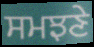
ਸਮਝਣੇ